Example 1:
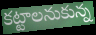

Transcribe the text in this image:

కట్టాలనుకున్న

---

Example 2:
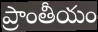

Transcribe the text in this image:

ప్రాంతీయం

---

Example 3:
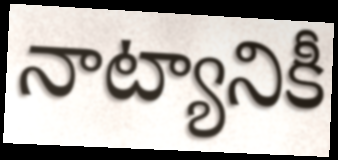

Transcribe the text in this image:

నాట్యానికీ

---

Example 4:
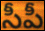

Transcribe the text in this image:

సీపీ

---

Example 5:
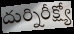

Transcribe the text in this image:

దుర్నిరీక్ష్యో